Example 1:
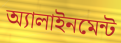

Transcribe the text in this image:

অ্যালাইনমেন্ট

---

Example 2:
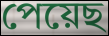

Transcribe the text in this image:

পেয়েছ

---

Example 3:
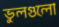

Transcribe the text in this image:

ভুলগুলো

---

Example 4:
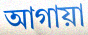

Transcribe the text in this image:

আগায়া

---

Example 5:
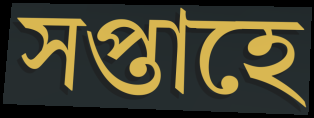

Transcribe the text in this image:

সপ্তাহে